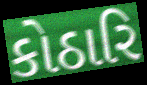
કોઠારિ